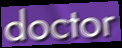
doctor